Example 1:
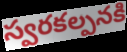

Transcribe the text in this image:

స్వరకల్పనకి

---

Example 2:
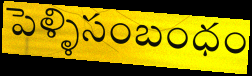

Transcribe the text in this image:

పెళ్ళిసంబంధం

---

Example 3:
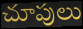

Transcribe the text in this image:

చూపులు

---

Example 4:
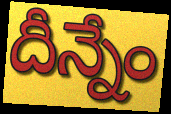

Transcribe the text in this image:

దీన్నేం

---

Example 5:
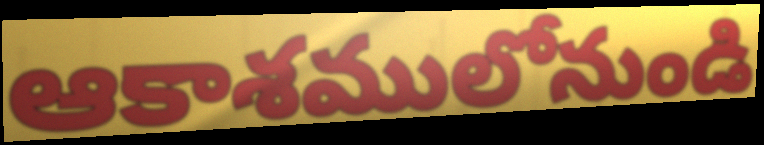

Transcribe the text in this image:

ఆకాశములోనుండి